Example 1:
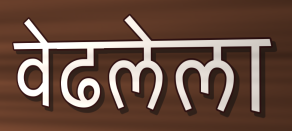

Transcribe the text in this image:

वेढलेला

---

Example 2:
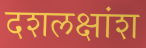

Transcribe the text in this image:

दशलक्षांश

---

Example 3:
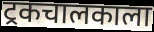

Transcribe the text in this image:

ट्रकचालकाला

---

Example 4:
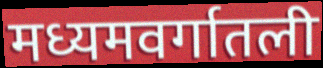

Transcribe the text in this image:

मध्यमवर्गातली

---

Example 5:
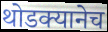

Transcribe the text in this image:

थोडक्यानेच